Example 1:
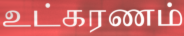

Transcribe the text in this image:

உட்கரணம்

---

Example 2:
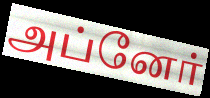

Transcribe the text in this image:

அப்னேர்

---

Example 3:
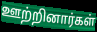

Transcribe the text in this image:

ஊற்றினார்கள்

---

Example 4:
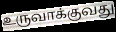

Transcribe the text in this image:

உருவாக்குவது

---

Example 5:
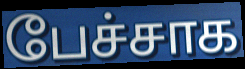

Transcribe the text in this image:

பேச்சாக